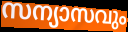
സന്യാസവും